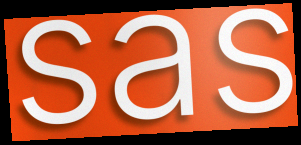
sas